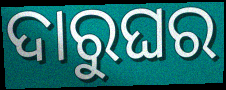
ଦାରୁଘର